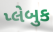
પ્લેબુક